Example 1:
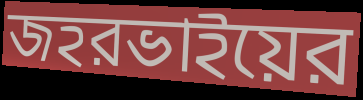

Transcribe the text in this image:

জহরভাইয়ের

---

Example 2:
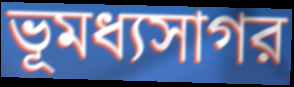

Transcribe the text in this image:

ভূমধ্যসাগর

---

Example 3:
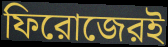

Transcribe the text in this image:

ফিরোজেরই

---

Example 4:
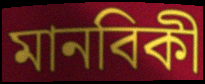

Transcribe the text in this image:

মানবিকী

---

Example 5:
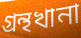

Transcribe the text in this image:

গ্রন্থখানা